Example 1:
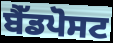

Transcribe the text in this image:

ਬੈੱਡਪੋਸਟ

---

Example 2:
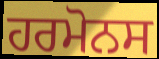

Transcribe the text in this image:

ਹਰਮੋਨਸ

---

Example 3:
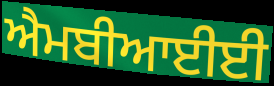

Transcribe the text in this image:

ਐਮਬੀਆਈਈ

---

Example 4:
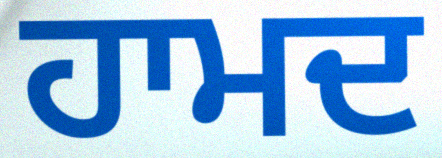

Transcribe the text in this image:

ਹਾਮਦ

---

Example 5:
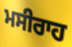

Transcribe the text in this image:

ਮਸੀਰਾਹ